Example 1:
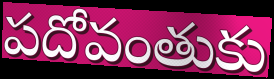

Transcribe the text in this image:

పదోవంతుకు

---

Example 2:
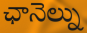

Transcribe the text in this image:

ఛానెల్ను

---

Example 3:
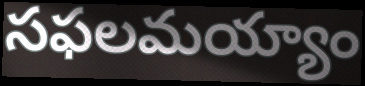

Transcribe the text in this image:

సఫలమయ్యాం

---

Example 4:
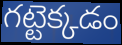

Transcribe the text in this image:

గట్టెక్కడం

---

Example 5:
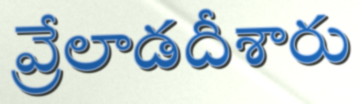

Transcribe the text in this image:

వ్రేలాడదీశారు